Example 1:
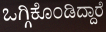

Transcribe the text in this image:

ಒಗ್ಗಿಕೊಂಡಿದ್ದಾರೆ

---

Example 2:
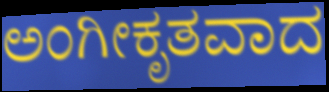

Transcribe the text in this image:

ಅಂಗೀಕೃತವಾದ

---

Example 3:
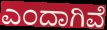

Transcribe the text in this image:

ಎಂದಾಗಿವೆ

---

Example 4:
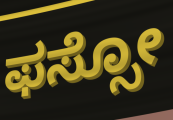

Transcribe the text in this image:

ಫಸ್ಸೋ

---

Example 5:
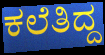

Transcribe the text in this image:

ಕಲೆತಿದ್ದ